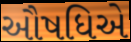
ઔષધિએ